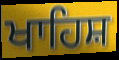
ਖਾਹਿਸ਼